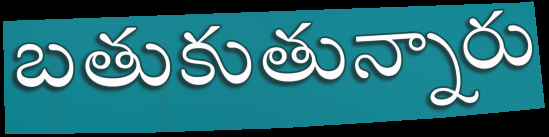
బతుకుతున్నారు